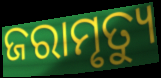
ଜରାମୃତ୍ୟୁ